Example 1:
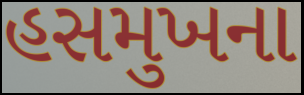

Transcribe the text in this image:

હસમુખના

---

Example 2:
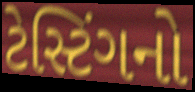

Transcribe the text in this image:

ટેસ્ટિંગનો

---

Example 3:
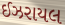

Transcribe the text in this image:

ઈઝરાયલ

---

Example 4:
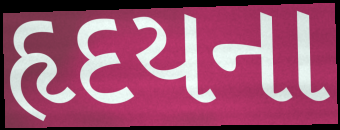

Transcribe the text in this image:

હૃદયના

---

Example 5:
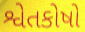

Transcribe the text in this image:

શ્વેતકોષો